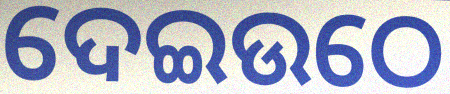
ଦେଇଉଠେ